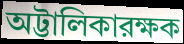
অট্টালিকারক্ষক